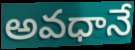
అవధానే